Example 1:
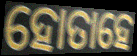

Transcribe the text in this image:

ହୋତାହେ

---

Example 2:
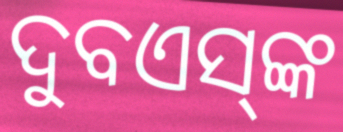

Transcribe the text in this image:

ଦୁବଏସ୍‌ଙ୍କ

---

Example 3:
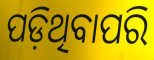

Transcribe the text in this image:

ପଡ଼ିଥିବାପରି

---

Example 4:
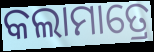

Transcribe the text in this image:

କଲାମାତ୍ରେ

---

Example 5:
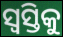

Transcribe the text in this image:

ସ୍ୱସ୍ତିକୁ